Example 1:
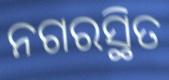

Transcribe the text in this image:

ନଗରସ୍ଥିତ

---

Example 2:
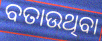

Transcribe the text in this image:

ବତାଉଥିବା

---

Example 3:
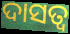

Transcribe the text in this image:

ଦାସତ୍ବ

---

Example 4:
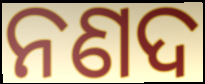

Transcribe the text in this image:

ନଣଦ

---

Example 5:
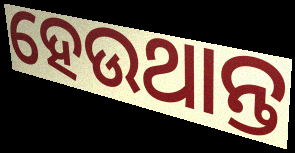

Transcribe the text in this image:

ହେଉଥାନ୍ତ